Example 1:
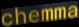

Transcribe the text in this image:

chemma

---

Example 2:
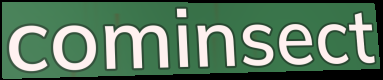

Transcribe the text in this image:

cominsect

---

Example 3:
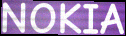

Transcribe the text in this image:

NOKIA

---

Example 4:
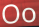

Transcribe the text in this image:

Oo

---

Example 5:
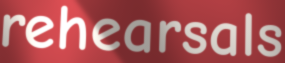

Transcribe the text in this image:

rehearsals